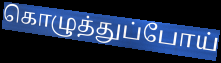
கொழுத்துப்போய்